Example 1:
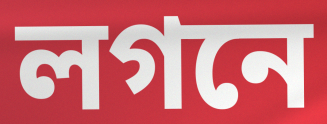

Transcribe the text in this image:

লগনে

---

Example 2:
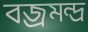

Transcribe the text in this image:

বজ্রমন্দ্র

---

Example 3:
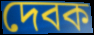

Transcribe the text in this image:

দেবক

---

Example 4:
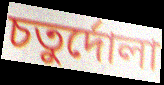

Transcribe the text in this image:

চতুর্দোলা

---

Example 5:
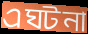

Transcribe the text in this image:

এঘটনা